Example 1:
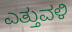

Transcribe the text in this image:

ಎತ್ತುವಳಿ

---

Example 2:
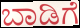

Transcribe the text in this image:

ಬಾಡಿಗೆ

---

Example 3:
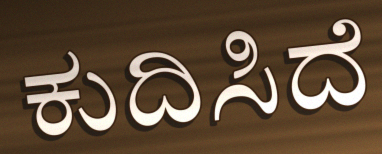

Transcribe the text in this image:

ಕುದಿಸಿದೆ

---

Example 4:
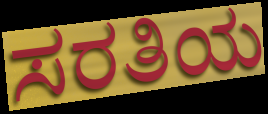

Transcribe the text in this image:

ಸರತಿಯ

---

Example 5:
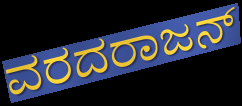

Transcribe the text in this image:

ವರದರಾಜನ್